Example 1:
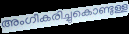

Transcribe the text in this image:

അംഗീകരിച്ചുകൊണ്ടുള്ള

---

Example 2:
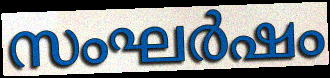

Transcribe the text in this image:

സംഘർഷം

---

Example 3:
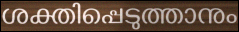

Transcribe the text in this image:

ശക്തിപ്പെടുത്താനും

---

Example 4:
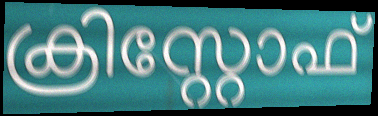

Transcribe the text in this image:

ക്രിസ്റ്റോഫ്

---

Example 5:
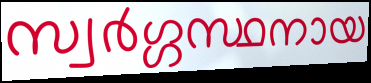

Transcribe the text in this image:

സ്വർഗ്ഗസ്ഥനായ